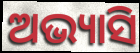
ଅଭ୍ୟାସି